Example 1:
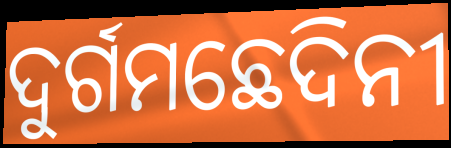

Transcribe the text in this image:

ଦୁର୍ଗମଛେଦିନୀ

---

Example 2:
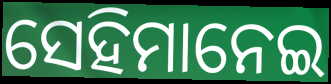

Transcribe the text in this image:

ସେହିମାନେଇ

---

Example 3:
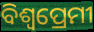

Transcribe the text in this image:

ବିଶ୍ଵପ୍ରେମୀ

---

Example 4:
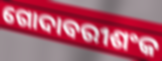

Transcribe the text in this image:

ଗୋଦାବରୀଶଂକ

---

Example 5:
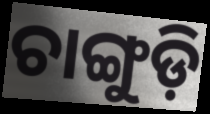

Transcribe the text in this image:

ଚାଙ୍ଗୁଡ଼ି